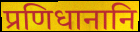
प्रणिधानानि